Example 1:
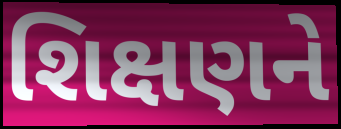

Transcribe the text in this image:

શિક્ષણને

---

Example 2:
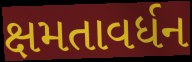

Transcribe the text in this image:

ક્ષમતાવર્ધન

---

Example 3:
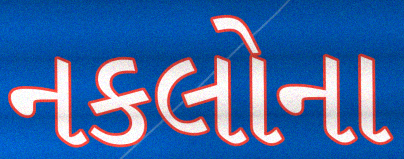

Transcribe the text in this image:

નકલોના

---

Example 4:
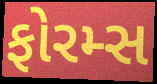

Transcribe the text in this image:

ફોરમ્સ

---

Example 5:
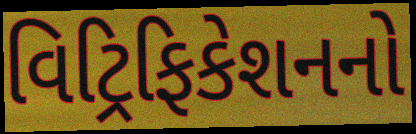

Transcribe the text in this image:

વિટ્રિફિકેશનનો